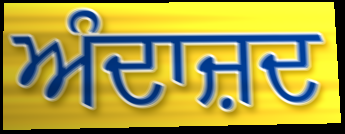
ਅੰਦਾਜ਼ਦ